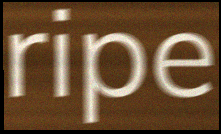
ripe